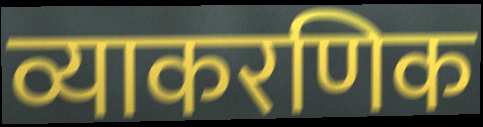
व्याकरणिक